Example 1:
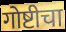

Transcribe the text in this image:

गोष्टीचा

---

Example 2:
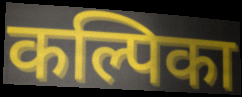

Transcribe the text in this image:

कल्पिका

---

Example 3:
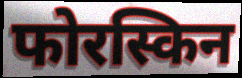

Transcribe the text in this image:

फोरस्किन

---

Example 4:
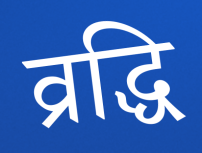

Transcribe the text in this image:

व्रद्धि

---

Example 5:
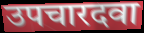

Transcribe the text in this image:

उपचारदवा